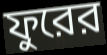
ফুরের